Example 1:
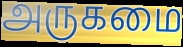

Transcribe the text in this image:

அருகமை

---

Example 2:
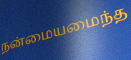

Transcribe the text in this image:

நன்மையமைந்த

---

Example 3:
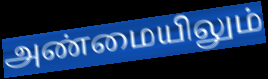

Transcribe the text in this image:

அண்மையிலும்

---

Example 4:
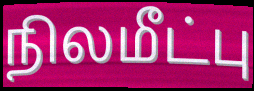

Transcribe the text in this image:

நிலமீட்பு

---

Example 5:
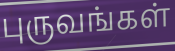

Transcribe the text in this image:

புருவங்கள்